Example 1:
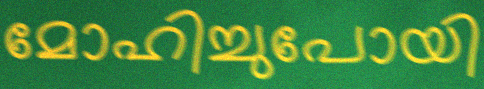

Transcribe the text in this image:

മോഹിച്ചുപോയി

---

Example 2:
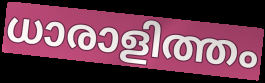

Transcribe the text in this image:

ധാരാളിത്തം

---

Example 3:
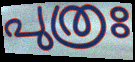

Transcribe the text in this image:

പുത്രഃ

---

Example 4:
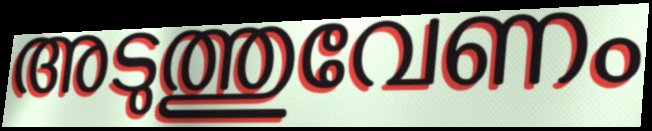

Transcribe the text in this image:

അടുത്തുവേണം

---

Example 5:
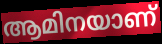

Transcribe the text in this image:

ആമിനയാണ്